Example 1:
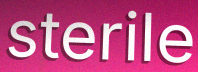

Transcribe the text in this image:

sterile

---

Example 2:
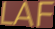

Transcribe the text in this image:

LAF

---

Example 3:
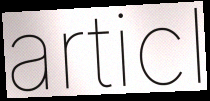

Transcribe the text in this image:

articl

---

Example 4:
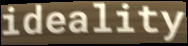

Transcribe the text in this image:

ideality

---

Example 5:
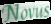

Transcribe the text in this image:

Novus